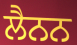
ਲੈਨਨ